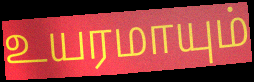
உயரமாயும்